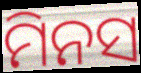
ମିନସ